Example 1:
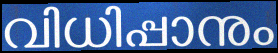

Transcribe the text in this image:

വിധിപ്പാനും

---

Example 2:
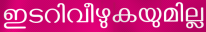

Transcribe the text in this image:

ഇടറിവീഴുകയുമില്ല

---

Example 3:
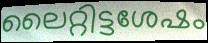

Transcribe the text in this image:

ലൈറ്റിട്ടശേഷം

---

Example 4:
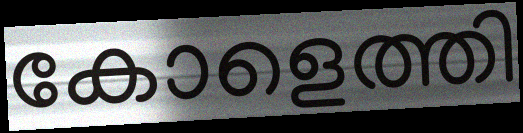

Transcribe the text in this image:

കോളെത്തി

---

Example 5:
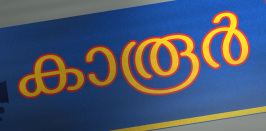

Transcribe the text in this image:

കാരൂർ